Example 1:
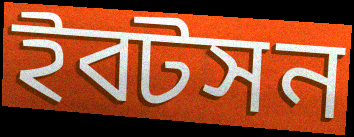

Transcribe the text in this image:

ইবটসন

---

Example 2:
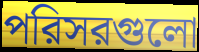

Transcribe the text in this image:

পরিসরগুলো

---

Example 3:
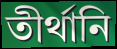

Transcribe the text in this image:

তীর্থানি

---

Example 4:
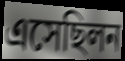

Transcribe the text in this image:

এসেছিলন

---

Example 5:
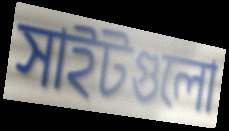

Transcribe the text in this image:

সাইটগুলো